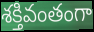
శక్తివంతంగా